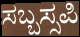
ಸಬ್ಬಸ್ಸಪಿ